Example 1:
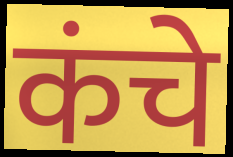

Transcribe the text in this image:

कंचे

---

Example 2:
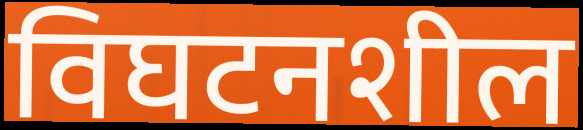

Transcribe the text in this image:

विघटनशील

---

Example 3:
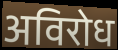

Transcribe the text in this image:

अविरोध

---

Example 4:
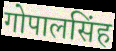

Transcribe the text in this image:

गोपालसिंह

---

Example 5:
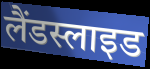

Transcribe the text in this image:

लैंडस्लाइड